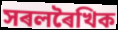
সৰলৰৈখিক